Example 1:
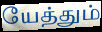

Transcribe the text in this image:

யேத்தும்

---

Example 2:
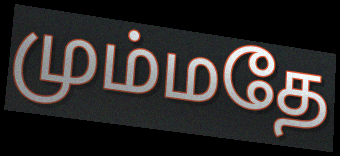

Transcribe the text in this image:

மும்மதே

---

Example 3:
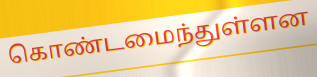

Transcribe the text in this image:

கொண்டமைந்துள்ளன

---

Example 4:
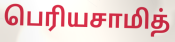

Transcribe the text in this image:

பெரியசாமித்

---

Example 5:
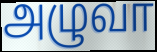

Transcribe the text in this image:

அழுவா